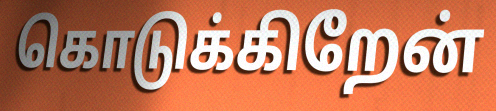
கொடுக்கிறேன்